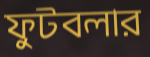
ফুটবলার